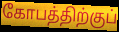
கோபத்திற்குப்